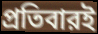
প্রতিবারই